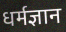
धर्मज्ञान